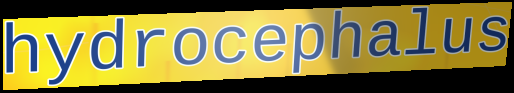
hydrocephalus